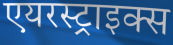
एयरस्ट्राइक्स